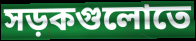
সড়কগুলোতে